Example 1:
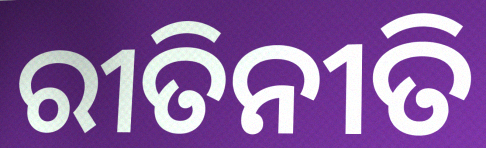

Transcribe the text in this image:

ରୀତିନୀତି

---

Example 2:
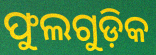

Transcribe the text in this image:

ଫୁଲଗୁଡ଼ିକ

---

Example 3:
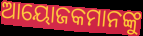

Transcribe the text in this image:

ଆୟୋଜକମାନଙ୍କୁ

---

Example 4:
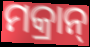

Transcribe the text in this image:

ମକ୍ରାନ୍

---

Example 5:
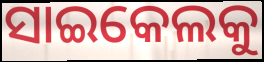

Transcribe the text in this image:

ସାଇକେଲକୁ